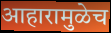
आहारामुळेच